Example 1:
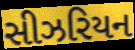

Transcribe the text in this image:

સીઝરિયન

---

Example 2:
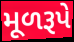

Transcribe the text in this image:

મૂળરૂપે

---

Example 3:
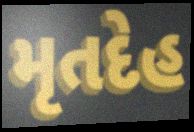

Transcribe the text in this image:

મૃતદેહ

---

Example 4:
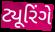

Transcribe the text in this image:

ટ્યૂરિંગે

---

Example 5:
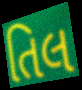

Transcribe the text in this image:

તિલ